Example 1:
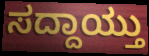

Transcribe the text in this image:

ಸದ್ದಾಯ್ತು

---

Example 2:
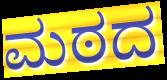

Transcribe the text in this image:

ಮಠದ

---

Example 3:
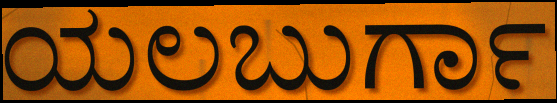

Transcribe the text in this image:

ಯಲಬುರ್ಗಾ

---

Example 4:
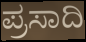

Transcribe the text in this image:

ಪ್ರಸಾದಿ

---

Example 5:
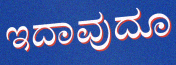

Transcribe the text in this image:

ಇದಾವುದೂ